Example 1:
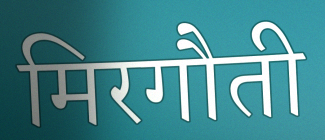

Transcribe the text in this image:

मिरगौती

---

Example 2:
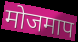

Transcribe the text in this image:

मोजमाप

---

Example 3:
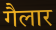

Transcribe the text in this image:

गैलार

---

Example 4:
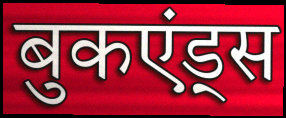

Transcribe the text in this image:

बुकएंड्स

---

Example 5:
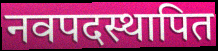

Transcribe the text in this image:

नवपदस्थापित